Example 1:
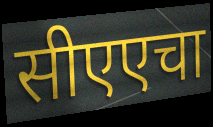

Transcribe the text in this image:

सीएएचा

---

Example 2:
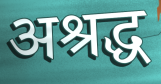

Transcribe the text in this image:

अश्रद्ध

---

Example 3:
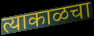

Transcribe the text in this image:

त्याकाळचा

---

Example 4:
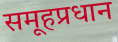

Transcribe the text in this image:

समूहप्रधान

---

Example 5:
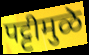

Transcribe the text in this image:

पट्टीमुळे